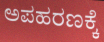
ಅಪಹರಣಕ್ಕೆ